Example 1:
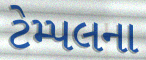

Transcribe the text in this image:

ટેમ્પલના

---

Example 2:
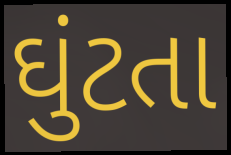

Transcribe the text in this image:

ઘુંટતા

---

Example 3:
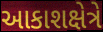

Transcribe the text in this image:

આકાશક્ષેત્રે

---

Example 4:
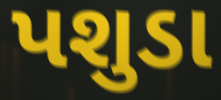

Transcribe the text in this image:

પશુડા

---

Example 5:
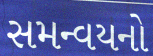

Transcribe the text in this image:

સમન્વયનો